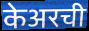
केअरची